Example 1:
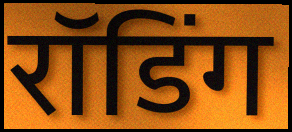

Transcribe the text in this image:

रॉडिंग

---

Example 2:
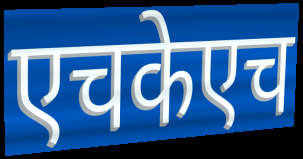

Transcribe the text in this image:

एचकेएच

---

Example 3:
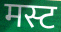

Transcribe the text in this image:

मस्‍ट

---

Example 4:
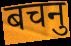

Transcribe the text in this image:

बचनु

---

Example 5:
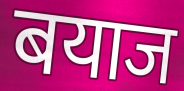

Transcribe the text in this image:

बयाज